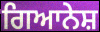
ਗਿਆਨੇਸ਼